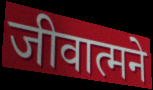
जीवात्मने